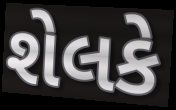
શેલકે